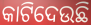
କାଟିଦେଉଛି